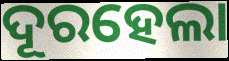
ଦୂରହେଲା